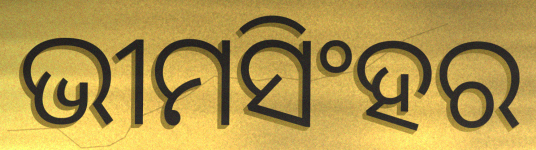
ଭୀମସିଂହର